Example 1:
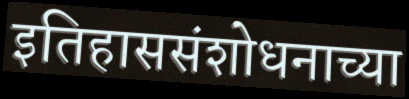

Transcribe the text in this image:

इतिहाससंशोधनाच्या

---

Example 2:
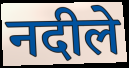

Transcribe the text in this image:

नदीले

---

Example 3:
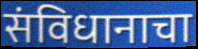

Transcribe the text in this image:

संविधानाचा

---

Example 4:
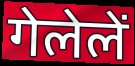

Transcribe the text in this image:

गेलेलें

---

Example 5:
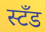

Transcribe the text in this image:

स्टँड